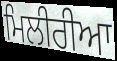
ਮਿਲੀਰੀਆ